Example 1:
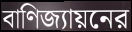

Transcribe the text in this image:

বাণিজ্যায়নের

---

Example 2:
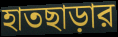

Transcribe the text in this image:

হাতছাড়ার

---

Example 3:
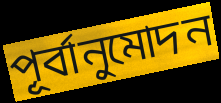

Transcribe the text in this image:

পূর্বানুমোদন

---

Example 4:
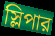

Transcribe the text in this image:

স্লিপার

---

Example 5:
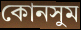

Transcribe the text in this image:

কোনসুম